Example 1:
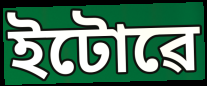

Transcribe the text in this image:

ইটোৱে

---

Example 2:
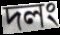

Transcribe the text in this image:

দলং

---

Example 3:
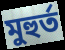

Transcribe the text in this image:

মুহুৰ্ত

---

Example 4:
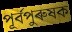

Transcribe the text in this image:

পূৰ্বপুৰুষক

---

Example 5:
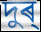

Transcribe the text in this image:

দুৰ্